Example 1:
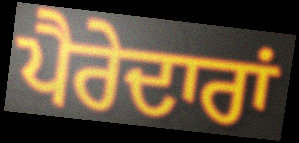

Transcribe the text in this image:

ਪੈਰੇਦਾਰਾਂ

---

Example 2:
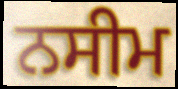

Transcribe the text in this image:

ਨਸੀਮ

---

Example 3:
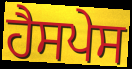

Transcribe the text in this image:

ਹੈਸਪੇਸ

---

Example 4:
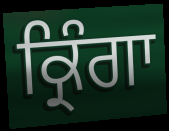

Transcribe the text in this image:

ਕ੍ਰਿੰਗਾ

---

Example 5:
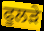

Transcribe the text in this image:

ਫੂਲੜੇ